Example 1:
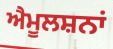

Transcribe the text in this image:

ਐਮੂਲਸ਼ਨਾਂ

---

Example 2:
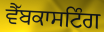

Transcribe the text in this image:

ਵੈੱਬਕਾਸਟਿੰਗ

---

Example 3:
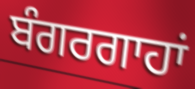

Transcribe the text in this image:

ਬੰਗਰਗਾਹਾਂ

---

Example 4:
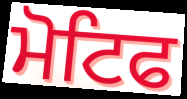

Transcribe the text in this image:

ਮੋਟਿਫ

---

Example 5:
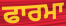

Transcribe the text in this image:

ਫਾਰਮਾ